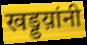
खड्डय़ांनी